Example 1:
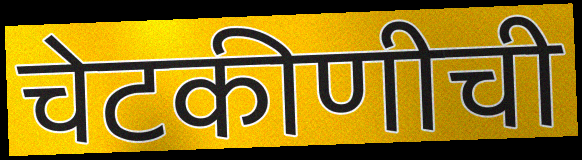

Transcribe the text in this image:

चेटकीणीची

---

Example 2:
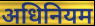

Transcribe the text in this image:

अधिनियम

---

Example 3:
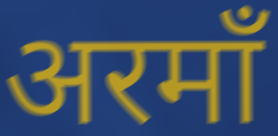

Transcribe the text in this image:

अरमाँ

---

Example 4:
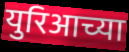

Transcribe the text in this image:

युरिआच्या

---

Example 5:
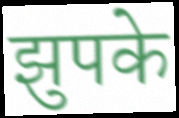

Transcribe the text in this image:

झुपके